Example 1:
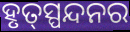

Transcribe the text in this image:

ହୃତ୍‌ସ୍ପନ୍ଦନର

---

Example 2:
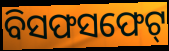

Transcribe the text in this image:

ବିସଫସଫେଟ୍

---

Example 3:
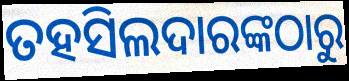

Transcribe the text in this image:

ତହସିଲଦାରଙ୍କଠାରୁ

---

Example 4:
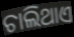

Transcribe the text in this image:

ଚାଲିଥାଏ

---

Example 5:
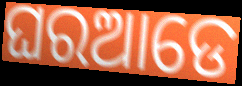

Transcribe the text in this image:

ଘରଆଡେ